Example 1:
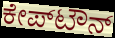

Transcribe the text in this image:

ಕೇಪ್‌ಟೌನ್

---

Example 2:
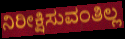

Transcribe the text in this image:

ನಿರೀಕ್ಷಿಸುವಂತಿಲ್ಲ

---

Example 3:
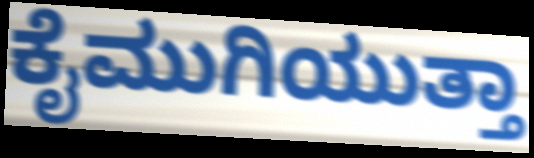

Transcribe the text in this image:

ಕೈಮುಗಿಯುತ್ತಾ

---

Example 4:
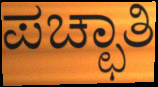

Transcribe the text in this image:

ಪಚ್ಛಾತಿ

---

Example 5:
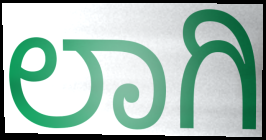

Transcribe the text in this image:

ಲಾಗಿ